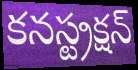
కనస్ట్రక్షన్